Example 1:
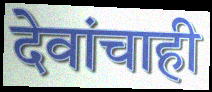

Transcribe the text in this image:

देवांचाही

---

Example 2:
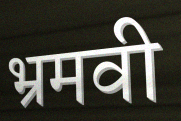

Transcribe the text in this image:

भ्रमवी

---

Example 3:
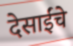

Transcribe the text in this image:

देसाईंचे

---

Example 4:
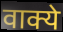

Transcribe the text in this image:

वाक्ये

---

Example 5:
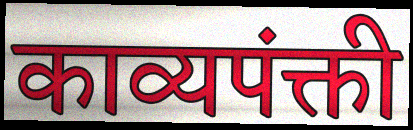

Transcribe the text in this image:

काव्यपंक्ती